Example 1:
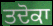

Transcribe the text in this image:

ਤਦੋਕਾ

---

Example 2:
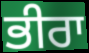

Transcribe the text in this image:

ਭੀਰਾ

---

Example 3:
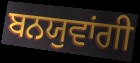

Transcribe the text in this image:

ਬਨਯੁਵਾਂਗੀ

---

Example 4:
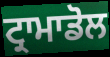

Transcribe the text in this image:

ਟ੍ਰਾਮਾਡੋਲ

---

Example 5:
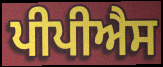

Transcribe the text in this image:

ਪੀਪੀਐਸ